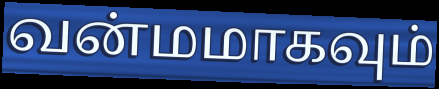
வன்மமாகவும்